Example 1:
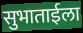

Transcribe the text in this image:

सुभाताईला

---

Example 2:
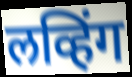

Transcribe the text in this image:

लव्हिंग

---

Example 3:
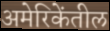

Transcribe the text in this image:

अमेरिकेंतील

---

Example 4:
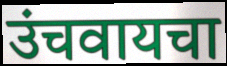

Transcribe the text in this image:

उंचवायचा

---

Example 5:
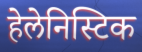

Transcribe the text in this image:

हेलेनिस्टिक